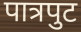
पात्रपुट